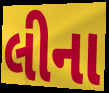
લીના